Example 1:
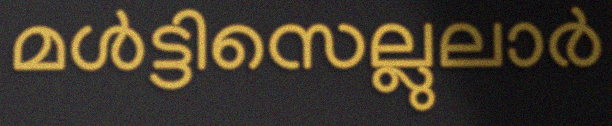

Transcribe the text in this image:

മൾട്ടിസെല്ലുലാർ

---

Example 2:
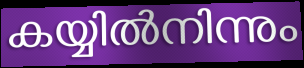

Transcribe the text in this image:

കയ്യിൽനിന്നും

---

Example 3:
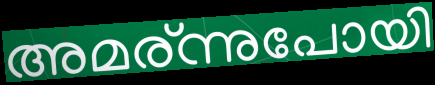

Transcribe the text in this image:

അമര്ന്നുപോയി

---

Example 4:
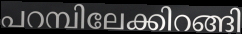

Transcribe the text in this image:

പറമ്പിലേക്കിറങ്ങി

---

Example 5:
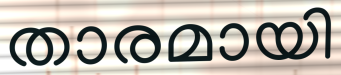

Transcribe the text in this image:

താരമായി